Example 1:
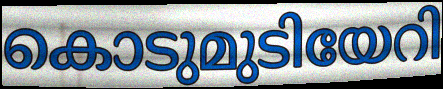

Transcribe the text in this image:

കൊടുമുടിയേറി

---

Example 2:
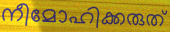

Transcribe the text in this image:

നീമോഹിക്കരുത്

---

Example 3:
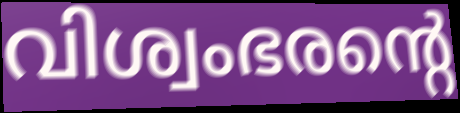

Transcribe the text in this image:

വിശ്വംഭരന്റെ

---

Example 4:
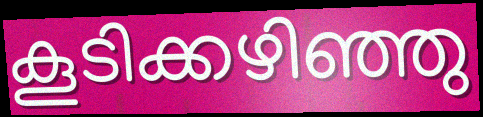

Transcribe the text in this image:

കൂടിക്കഴിഞ്ഞു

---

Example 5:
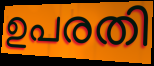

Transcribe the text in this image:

ഉപരതി